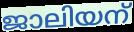
ജാലിയന്